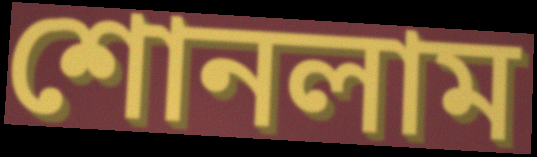
শোনলাম